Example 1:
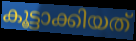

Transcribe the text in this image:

കൂട്ടാക്കിയത്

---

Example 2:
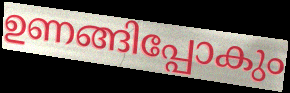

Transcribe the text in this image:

ഉണങ്ങിപ്പോകും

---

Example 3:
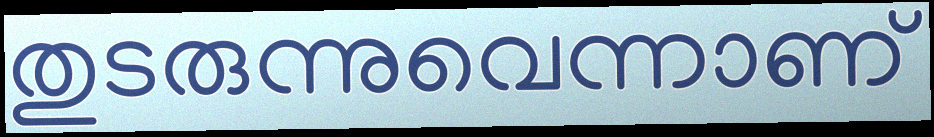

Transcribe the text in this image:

തുടരുന്നുവെന്നാണ്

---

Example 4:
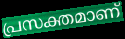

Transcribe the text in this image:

പ്രസക്തമാണ്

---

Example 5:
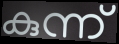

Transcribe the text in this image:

കുന്ന്